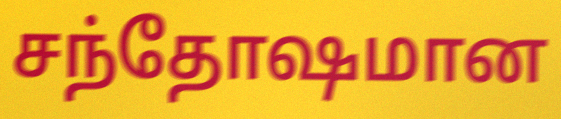
சந்தோஷமான